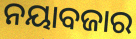
ନୟାବଜାର